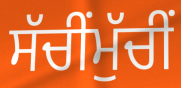
ਸੱਚੀਂਮੁੱਚੀਂ